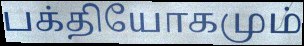
பக்தியோகமும்